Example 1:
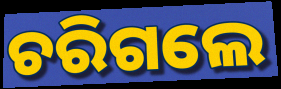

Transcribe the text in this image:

ଚରିଗଲେ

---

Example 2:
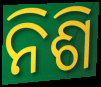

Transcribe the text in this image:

ନିଶି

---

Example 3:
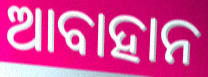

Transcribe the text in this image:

ଆବାହାନ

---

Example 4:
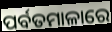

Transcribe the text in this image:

ପର୍ବତମାଳାରେ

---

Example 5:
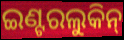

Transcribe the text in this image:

ଇଣ୍ଟରଲୁକିନ୍